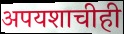
अपयशाचीही